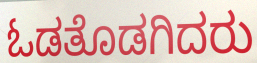
ಓಡತೊಡಗಿದರು